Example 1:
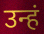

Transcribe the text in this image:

उन्हं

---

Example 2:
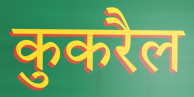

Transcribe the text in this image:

कुकरैल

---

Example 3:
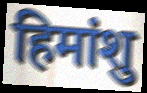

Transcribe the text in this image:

हिमांशु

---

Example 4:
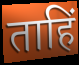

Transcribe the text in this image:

ताहिं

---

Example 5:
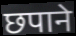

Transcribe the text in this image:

छपाने